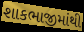
શાકભાજીમાંથી